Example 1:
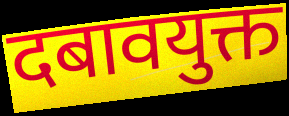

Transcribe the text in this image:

दबावयुक्त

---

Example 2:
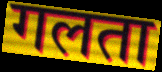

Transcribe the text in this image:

गलता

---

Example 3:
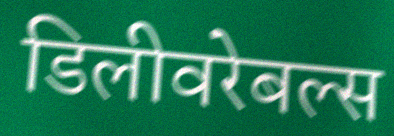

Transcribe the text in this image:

डिलीवरेबल्स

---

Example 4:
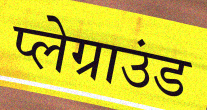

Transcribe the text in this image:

प्लेग्राउंड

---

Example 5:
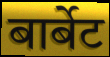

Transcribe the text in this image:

बार्बेट